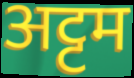
अट्टम